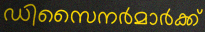
ഡിസൈനർമാർക്ക്